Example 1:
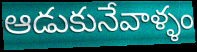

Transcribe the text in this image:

ఆడుకునేవాళ్ళం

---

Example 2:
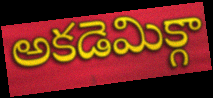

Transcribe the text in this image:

అకడెమిక్గా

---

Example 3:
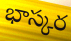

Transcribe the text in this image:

భాస్కర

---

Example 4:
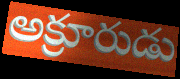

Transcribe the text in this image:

అక్రూరుడు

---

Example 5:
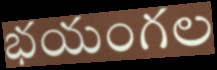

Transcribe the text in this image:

భయంగల